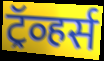
ट्रॅव्हर्स